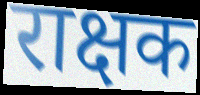
राक्षक